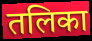
तलिका